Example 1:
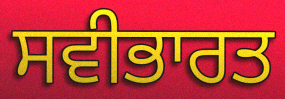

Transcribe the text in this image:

ਸਵੀਭਾਰਤ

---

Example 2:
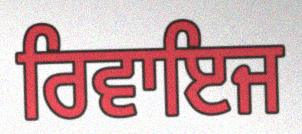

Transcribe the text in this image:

ਰਿਵਾਇਜ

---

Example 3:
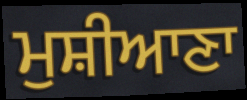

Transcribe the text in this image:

ਮੁਸ਼ੀਆਣਾ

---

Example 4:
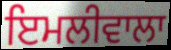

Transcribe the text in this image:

ਇਮਲੀਵਾਲਾ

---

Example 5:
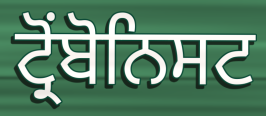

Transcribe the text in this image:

ਟ੍ਰੋਂਬੋਨਿਸਟ